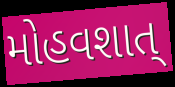
મોહવશાત્